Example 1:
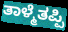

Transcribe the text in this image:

ತಾಳ್ಮೆತಪ್ಪಿ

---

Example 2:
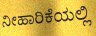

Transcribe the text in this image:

ನೀಹಾರಿಕೆಯಲ್ಲಿ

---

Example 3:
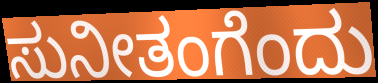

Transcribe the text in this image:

ಸುನೀತಂಗೆಂದು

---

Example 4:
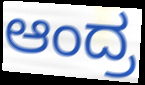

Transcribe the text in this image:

ಆಂದ್ರ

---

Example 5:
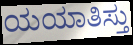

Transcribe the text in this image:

ಯಯಾತಿಸ್ತು